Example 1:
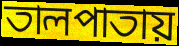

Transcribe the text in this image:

তালপাতায়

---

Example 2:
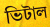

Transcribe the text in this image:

ভিটাল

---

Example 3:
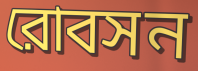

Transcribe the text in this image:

রোবসন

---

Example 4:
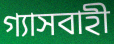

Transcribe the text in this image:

গ্যাসবাহী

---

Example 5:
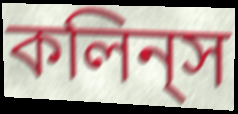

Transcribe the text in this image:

কলিন্‌স